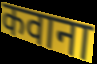
कवाना